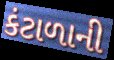
કંટાળાની